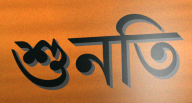
শুনতি